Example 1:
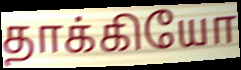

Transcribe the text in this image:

தாக்கியோ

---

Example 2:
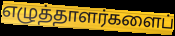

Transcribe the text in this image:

எழுத்தாளர்களைப்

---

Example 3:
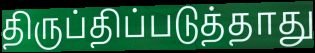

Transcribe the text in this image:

திருப்திப்படுத்தாது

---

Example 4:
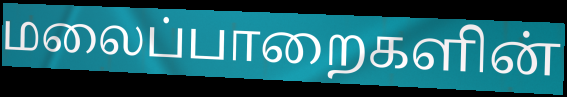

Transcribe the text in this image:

மலைப்பாறைகளின்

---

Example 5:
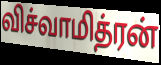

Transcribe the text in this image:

விச்வாமித்ரன்